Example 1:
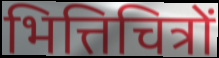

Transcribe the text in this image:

भित्तिचित्रों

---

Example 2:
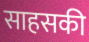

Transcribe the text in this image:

साहसकी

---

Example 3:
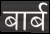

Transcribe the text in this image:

बार्ब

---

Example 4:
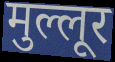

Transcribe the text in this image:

मुल्लूर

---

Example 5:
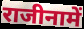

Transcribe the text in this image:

राजीनामें